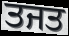
ਤਜਤ